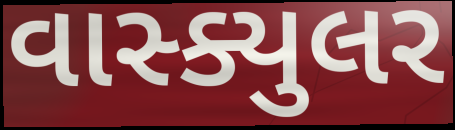
વાસ્ક્યુલર